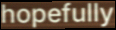
hopefully